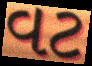
વટ